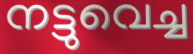
നട്ടുവെച്ച